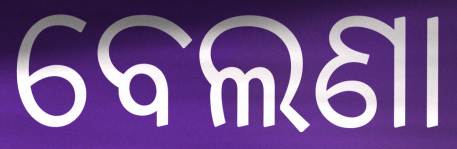
ବେଲଣା